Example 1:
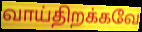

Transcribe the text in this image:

வாய்திறக்கவே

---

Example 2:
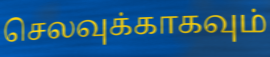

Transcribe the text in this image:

செலவுக்காகவும்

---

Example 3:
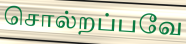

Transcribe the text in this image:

சொல்றப்பவே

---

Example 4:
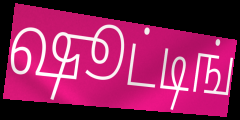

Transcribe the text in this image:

ஷூட்டிங்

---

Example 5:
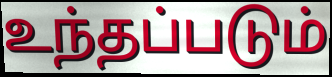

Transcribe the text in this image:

உந்தப்படும்